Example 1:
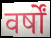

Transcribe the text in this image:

वर्षों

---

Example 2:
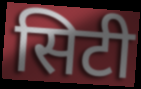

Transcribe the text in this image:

सिटी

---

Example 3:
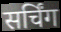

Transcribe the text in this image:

सर्चिंग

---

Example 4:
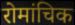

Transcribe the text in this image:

रोमांचिक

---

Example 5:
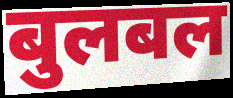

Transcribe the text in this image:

बुलबल